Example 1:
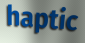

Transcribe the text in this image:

haptic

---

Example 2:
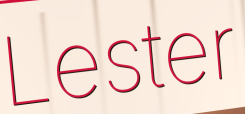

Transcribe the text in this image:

Lester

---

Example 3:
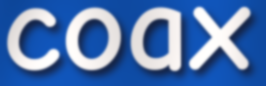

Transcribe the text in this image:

coax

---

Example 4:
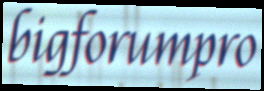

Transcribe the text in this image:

bigforumpro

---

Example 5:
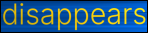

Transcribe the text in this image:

disappears